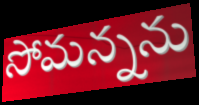
సోమన్నను